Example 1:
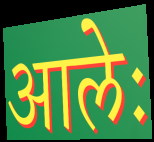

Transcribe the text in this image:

आलेः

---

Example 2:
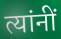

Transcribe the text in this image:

त्यांनीं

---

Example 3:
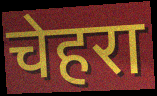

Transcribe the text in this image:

चेहरा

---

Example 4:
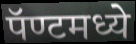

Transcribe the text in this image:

पॅण्टमध्ये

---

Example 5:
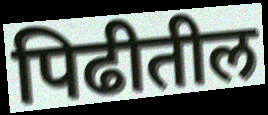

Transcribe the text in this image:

पिढीतील